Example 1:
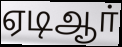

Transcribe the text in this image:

ஏடிஆர்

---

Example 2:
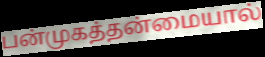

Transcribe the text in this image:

பன்முகத்தன்மையால்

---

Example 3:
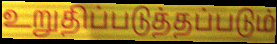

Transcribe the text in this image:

உறுதிப்படுத்தப்படும்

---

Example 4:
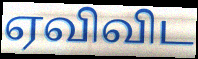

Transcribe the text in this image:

ஏவிவிட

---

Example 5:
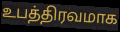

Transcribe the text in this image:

உபத்திரவமாக